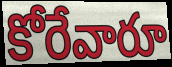
కోరేవారూ